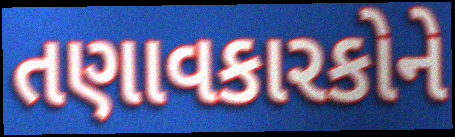
તણાવકારકોને